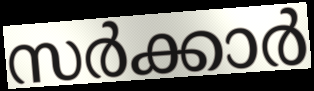
സർക്കാർ